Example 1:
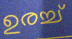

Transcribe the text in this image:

ഉരച്ച്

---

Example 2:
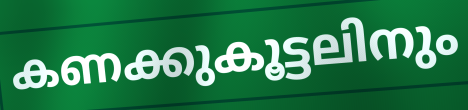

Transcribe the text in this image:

കണക്കുകൂട്ടലിനും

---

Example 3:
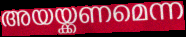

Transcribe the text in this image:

അയയ്ക്കണമെന്ന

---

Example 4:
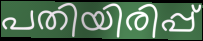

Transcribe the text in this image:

പതിയിരിപ്പ്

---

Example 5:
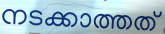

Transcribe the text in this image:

നടക്കാത്തത്